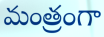
మంత్రంగా